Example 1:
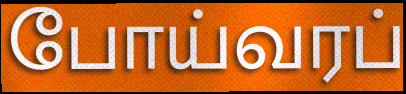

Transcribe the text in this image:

போய்வரப்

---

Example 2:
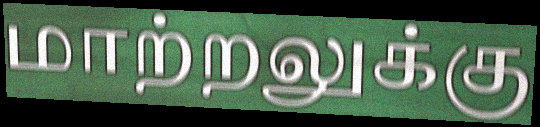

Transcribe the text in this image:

மாற்றலுக்கு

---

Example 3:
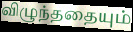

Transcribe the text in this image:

விழுந்ததையும்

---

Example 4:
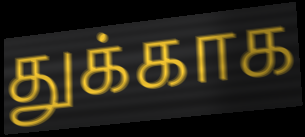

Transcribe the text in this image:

துக்காக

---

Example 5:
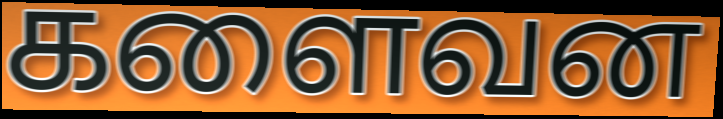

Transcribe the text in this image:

களைவன